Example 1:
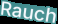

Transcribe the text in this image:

Rauch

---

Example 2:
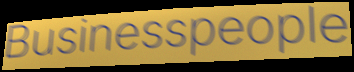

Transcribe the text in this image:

Businesspeople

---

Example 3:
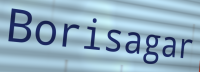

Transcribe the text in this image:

Borisagar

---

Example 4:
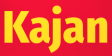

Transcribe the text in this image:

Kajan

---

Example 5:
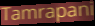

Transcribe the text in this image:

Tamrapani